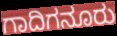
ಗಾದಿಗನೂರು